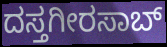
ದಸ್ತಗೀರಸಾಬ್